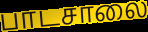
பாடசாலை